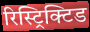
रिस्ट्रिक्टिड